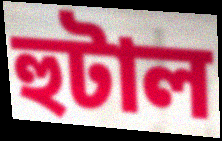
হুটাল